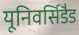
यूनिवर्सिडैड